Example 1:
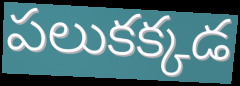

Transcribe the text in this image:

పలుకక్కడ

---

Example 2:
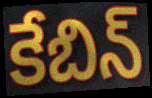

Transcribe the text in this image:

కేబిన్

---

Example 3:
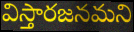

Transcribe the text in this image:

విస్తారజనమని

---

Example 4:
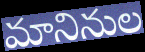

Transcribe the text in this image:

మానినుల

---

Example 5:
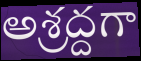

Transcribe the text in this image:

అశ్రద్దగా